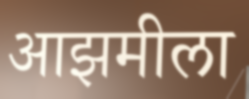
आझमीला